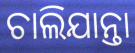
ଚାଲିଯାନ୍ତା